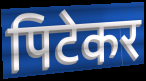
पिटेकर